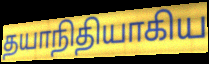
தயாநிதியாகிய